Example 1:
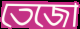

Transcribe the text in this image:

তেজো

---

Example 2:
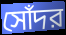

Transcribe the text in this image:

সোঁদর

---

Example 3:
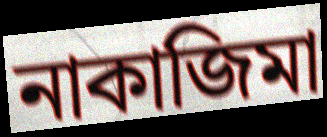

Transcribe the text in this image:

নাকাজিমা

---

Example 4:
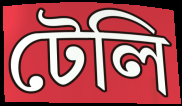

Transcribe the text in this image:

টেলি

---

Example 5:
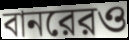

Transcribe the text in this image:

বানরেরও